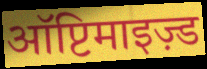
ऑप्टिमाइज़्ड